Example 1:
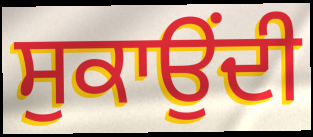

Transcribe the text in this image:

ਸੁਕਾਉਂਦੀ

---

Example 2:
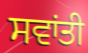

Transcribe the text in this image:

ਸਵਾਂਤੀ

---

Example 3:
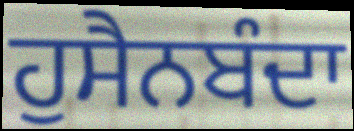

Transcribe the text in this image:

ਹੁਸੈਨਬੰਦਾ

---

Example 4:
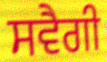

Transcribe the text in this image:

ਸਵੈਗੀ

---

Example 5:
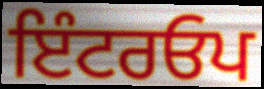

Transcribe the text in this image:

ਇੰਟਰਓਪ